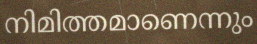
നിമിത്തമാണെന്നും